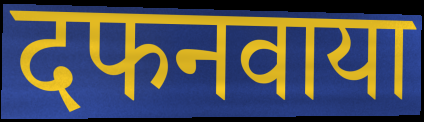
दफनवाया